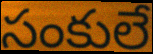
సంకులే